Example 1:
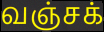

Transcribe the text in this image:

வஞ்சக்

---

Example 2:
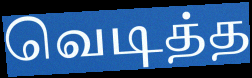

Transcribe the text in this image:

வெடித்த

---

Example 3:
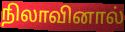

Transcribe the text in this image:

நிலாவினால்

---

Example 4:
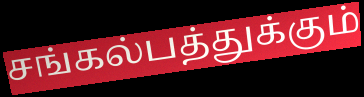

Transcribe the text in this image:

சங்கல்பத்துக்கும்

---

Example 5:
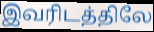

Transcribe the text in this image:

இவரிடத்திலே